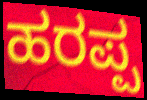
ಹರಪ್ಪ